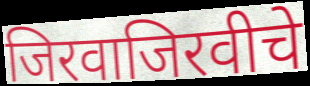
जिरवाजिरवीचे